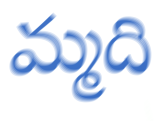
మ్మది